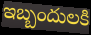
ఇబ్బందులకి